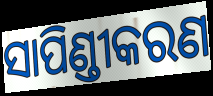
ସାପିଣ୍ଡୀକରଣ